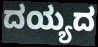
ದಯ್ಯದ